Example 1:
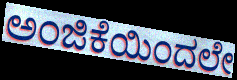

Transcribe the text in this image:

ಅಂಜಿಕೆಯಿಂದಲೇ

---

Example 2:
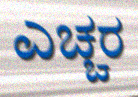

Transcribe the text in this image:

ಎಚ್ಚರ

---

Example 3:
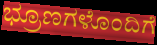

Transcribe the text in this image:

ಭ್ರೂಣಗಳೊಂದಿಗೆ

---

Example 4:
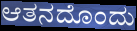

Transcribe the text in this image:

ಆತನದೊಂದು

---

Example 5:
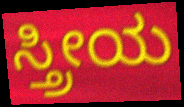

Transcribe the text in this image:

ಸ್ತ್ರೀಯ